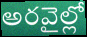
అరవైల్లో